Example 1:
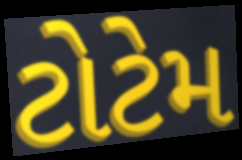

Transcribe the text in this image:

ટોટેમ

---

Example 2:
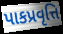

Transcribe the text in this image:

પાકપ્રવૃત્તિ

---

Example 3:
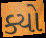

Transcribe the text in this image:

ક્યો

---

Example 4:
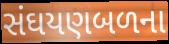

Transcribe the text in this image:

સંઘયણબળના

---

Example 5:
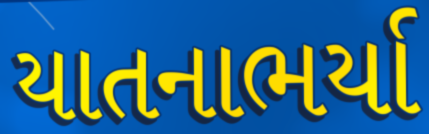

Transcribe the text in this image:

યાતનાભર્યા